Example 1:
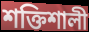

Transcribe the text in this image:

শক্তিশালী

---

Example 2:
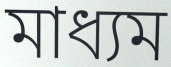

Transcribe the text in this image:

মাধ্যম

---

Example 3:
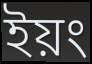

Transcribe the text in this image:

ইয়ং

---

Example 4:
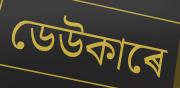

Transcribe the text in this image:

ডেউকাৰে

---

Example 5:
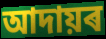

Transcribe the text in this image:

আদায়ৰ